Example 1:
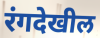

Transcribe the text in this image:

रंगदेखील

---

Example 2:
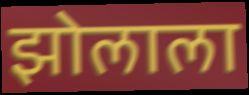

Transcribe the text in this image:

झोलाला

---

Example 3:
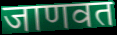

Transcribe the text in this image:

जाणवत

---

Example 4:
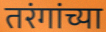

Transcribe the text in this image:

तरंगांच्या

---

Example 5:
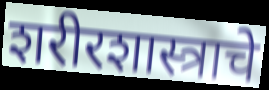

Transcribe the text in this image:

शरीरशास्त्राचे